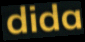
dida